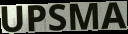
UPSMA